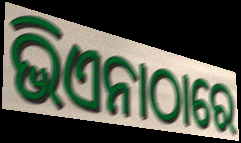
ଭିଏନାଠାରେ